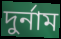
দুৰ্নাম